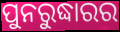
ପୁନରୁଦ୍ଧାରର